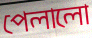
পেলালো